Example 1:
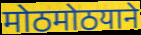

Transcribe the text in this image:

मोठमोठयाने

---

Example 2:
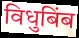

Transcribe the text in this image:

विधुबिंब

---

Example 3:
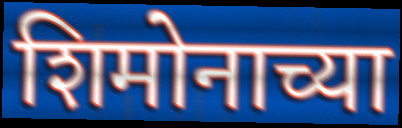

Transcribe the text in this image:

शिमोनाच्या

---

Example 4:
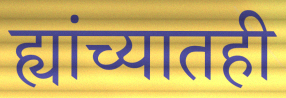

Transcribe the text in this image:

ह्यांच्यातही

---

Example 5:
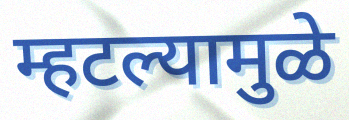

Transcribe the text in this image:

म्हटल्यामुळे